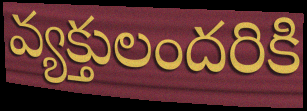
వ్యక్తులందరికి